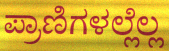
ಪ್ರಾಣಿಗಳಲ್ಲೆಲ್ಲ